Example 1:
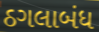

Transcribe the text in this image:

ઠગલાબંધ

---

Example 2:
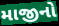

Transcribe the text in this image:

માજીનો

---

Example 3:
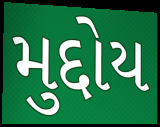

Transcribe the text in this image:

મુદ્દોય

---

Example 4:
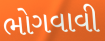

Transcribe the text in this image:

ભોગવાવી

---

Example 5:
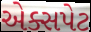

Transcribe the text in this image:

એક્સપેટ